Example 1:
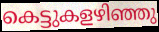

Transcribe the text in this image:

കെട്ടുകളഴിഞ്ഞു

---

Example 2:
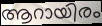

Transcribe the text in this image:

ആറായിരം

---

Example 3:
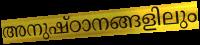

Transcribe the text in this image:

അനുഷ്ഠാനങ്ങളിലും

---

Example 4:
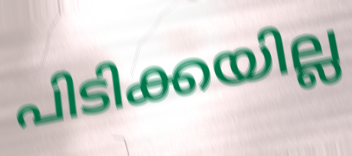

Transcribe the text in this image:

പിടിക്കയില്ല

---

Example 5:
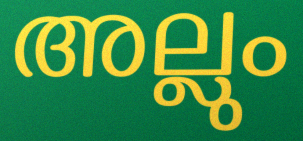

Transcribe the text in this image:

അല്ലും